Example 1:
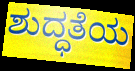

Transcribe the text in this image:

ಶುದ್ಧತೆಯ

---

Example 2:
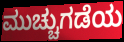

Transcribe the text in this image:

ಮುಚ್ಚುಗಡೆಯ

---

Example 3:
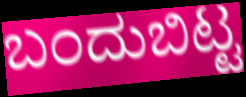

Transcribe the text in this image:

ಬಂದುಬಿಟ್ಟ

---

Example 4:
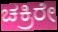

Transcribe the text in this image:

ಚಕ್ರಿರೇ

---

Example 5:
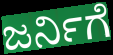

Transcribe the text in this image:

ಜರ್ನಿಗೆ